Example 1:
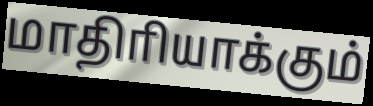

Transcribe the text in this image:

மாதிரியாக்கும்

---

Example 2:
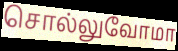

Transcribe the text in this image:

சொல்லுவோமா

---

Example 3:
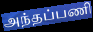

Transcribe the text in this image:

அந்தப்பணி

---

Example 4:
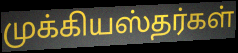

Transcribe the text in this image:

முக்கியஸ்தர்கள்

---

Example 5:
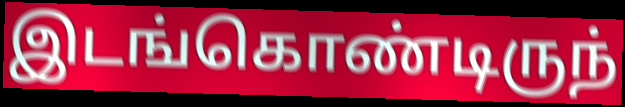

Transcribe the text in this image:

இடங்கொண்டிருந்